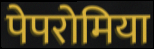
पेपरोमिया